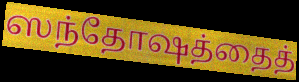
ஸந்தோஷத்தைத்